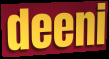
deeni